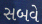
સબવે